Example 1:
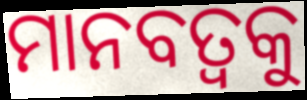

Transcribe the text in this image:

ମାନବତ୍ବକୁ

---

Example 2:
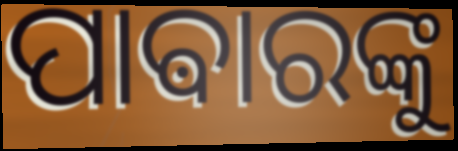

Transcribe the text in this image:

ପାଵାରଙ୍କୁ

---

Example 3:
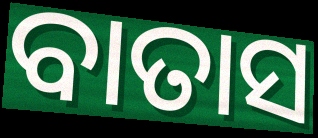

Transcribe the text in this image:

ବାତାସ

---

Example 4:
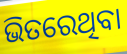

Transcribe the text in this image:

ଭିତରେଥିବା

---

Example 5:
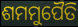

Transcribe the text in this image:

ଶମମୁପୈତି